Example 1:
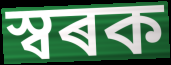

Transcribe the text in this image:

স্বৰক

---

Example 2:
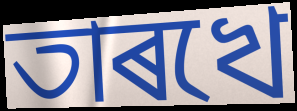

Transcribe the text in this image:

তাৰখে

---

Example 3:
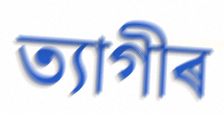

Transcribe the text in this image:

ত্যাগীৰ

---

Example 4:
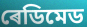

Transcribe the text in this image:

ৰেডিমেড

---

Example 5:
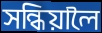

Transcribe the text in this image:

সন্ধিয়ালৈ